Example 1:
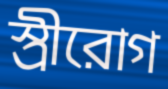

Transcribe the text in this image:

স্ত্রীরোগ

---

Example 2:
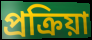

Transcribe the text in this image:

প্রক্রিয়া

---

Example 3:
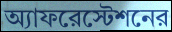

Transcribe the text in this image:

অ্যাফরেস্টেশনের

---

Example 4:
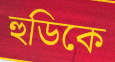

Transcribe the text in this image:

হুডিকে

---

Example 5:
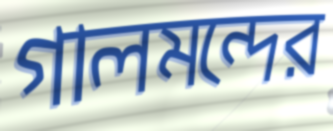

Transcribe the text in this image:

গালমন্দের